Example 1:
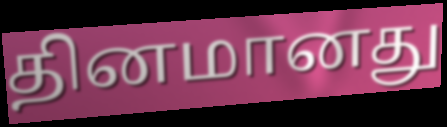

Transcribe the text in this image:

தினமானது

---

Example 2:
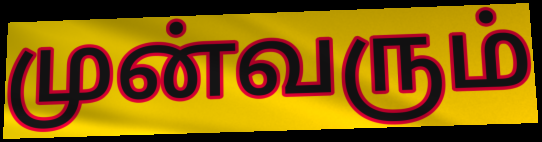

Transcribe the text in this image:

முன்வரும்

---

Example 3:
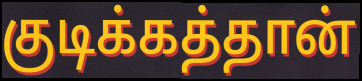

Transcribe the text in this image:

குடிக்கத்தான்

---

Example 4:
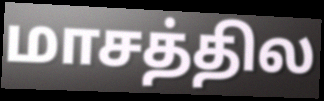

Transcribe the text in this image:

மாசத்தில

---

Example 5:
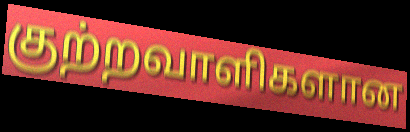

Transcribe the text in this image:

குற்றவாளிகளான